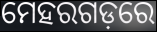
ମେହରଗଡ଼ରେ